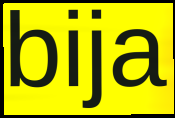
bija